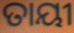
ତାୟୀ